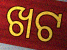
ଖଟ